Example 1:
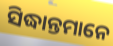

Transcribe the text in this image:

ସିଦ୍ଧାନ୍ତମାନେ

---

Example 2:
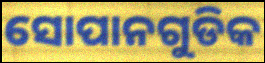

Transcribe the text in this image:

ସୋପାନଗୁଡିକ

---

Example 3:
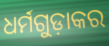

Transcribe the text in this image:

ଧର୍ମଗୁଡ଼ାକର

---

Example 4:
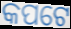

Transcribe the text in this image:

କପଟେ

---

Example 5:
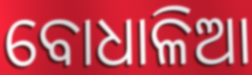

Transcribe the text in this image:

ବୋଧାଳିଆ